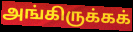
அங்கிருக்கக்